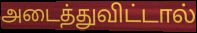
அடைத்துவிட்டால்